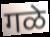
गळे